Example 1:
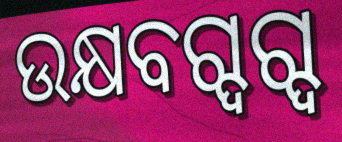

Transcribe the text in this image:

ଉକ୍ଷବଗ୍ଦଗ୍ଦ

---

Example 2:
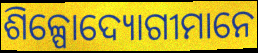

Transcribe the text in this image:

ଶିଳ୍ପୋଦ୍ୟୋଗୀମାନେ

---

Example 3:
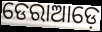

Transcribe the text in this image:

ଡେରାଆଡ଼େ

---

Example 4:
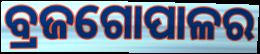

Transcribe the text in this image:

ବ୍ରଜଗୋପାଳର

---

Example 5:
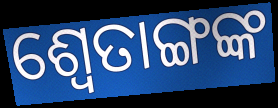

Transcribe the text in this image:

ଶ୍ବେତାଙ୍ଗଙ୍କ